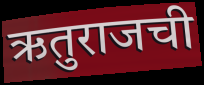
ऋतुराजची